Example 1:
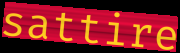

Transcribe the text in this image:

sattire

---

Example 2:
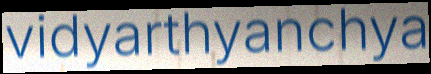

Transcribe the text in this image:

vidyarthyanchya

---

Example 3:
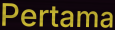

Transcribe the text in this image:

Pertama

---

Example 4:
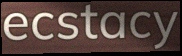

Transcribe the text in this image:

ecstacy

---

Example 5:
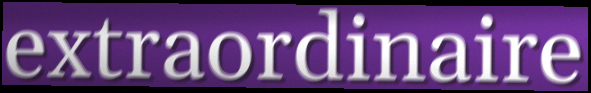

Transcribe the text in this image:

extraordinaire